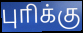
புரிக்கு